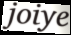
joiye